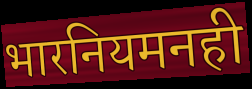
भारनियमनही